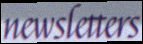
newsletters